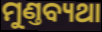
ମୁଣ୍ତବ୍ୟଥା